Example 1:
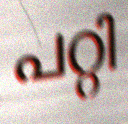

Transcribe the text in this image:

പറ്റി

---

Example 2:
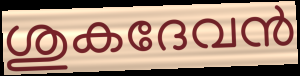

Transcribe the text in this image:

ശുകദേവൻ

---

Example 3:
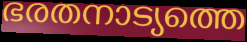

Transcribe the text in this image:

ഭരതനാട്യത്തെ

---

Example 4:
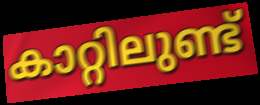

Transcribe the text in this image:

കാറ്റിലുണ്ട്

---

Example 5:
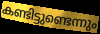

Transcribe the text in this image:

കണ്ടിട്ടുണ്ടെന്നും